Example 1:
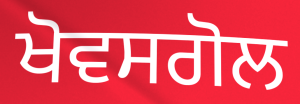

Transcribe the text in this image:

ਖੋਵਸਗੋਲ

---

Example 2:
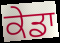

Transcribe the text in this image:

ਕੇਡਾ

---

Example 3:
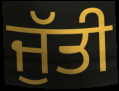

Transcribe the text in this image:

ਜੁੱਤੀ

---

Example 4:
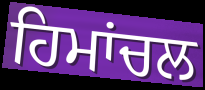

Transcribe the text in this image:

ਹਿਮਾਂਚਲ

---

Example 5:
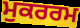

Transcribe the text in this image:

ਮੁਕਰਰਮ